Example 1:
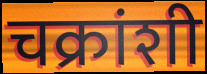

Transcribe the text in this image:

चक्रांशी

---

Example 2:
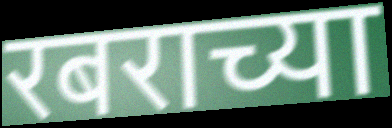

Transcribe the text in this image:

रबराच्या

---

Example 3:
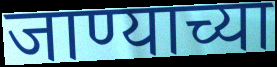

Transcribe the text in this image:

जाण्याच्या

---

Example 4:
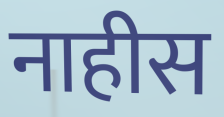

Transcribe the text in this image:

नाहीस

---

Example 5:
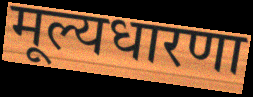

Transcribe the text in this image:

मूल्यधारणा